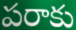
పరాకు